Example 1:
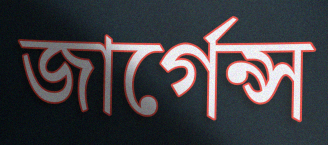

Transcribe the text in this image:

জার্গেন্স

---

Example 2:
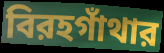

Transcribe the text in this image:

বিরহগাঁথার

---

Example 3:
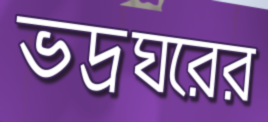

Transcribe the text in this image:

ভদ্রঘরের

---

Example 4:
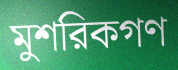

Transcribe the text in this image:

মুশরিকগণ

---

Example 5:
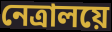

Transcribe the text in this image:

নেত্রালয়ে